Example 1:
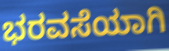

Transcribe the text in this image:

ಭರವಸೆಯಾಗಿ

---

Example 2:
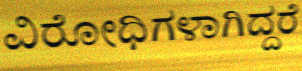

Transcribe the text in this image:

ವಿರೋಧಿಗಳಾಗಿದ್ದರೆ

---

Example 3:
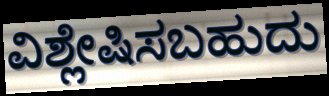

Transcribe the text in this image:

ವಿಶ್ಲೇಷಿಸಬಹುದು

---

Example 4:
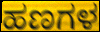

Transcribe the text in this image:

ಹಣಗಳ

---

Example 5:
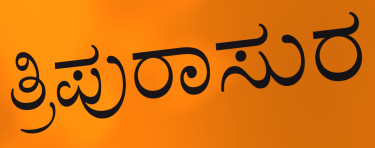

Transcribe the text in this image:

ತ್ರಿಪುರಾಸುರ